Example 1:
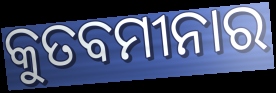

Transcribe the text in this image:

କୁତବମୀନାର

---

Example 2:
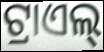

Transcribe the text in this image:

ଟ୍ରାଏଲ୍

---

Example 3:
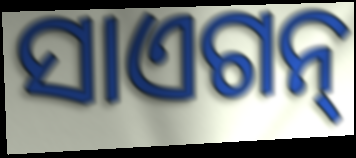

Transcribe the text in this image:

ସାଏଗନ୍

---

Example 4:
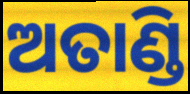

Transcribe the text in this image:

ଅତାଣ୍ଡି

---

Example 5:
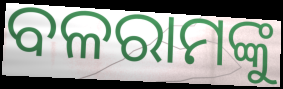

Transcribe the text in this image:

ବଳରାମଙ୍କୁ